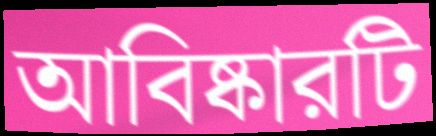
আবিষ্কারটি